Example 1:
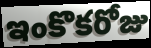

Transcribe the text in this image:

ఇంకొకరోజు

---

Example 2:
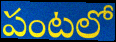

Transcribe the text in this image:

పంటలో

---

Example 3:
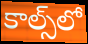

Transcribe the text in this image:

కాల్స్‌లో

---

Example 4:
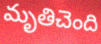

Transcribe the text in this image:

మృతిచెంది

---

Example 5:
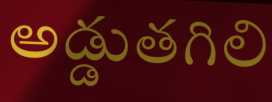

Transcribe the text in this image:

అడ్డుతగిలి